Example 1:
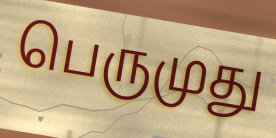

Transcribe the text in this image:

பெருமுது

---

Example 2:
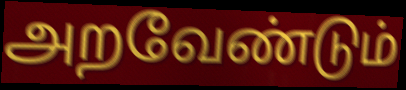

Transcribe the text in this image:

அறவேண்டும்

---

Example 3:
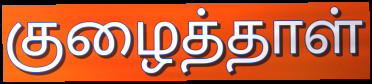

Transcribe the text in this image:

குழைத்தாள்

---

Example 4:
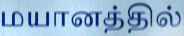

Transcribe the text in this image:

மயானத்தில்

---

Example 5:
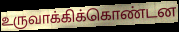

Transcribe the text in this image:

உருவாக்கிக்கொண்டன